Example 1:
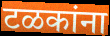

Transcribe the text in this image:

टळकांना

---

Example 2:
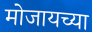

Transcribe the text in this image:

मोजायच्या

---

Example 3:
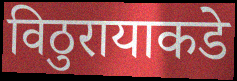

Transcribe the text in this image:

विठुरायाकडे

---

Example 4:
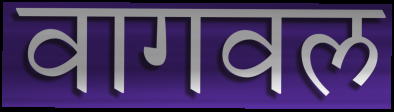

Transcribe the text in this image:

वागवल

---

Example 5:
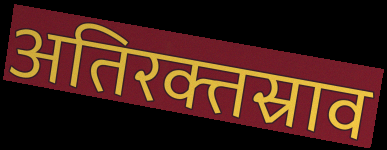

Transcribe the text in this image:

अतिरक्तस्राव